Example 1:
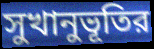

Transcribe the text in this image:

সুখানুভূতির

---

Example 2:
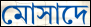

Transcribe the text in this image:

মোসাদে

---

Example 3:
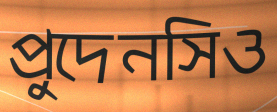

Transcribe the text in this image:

প্রুদেনসিও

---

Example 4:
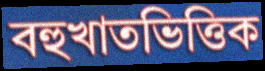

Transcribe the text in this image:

বহুখাতভিত্তিক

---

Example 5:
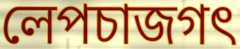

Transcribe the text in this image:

লেপচাজগৎ